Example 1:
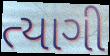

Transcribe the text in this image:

ત્યાગી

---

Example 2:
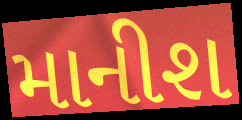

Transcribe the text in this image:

માનીશ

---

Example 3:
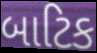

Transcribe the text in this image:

બાટિક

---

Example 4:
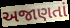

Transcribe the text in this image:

અજાણતાં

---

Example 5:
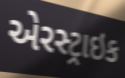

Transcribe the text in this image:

એરસ્ટ્રાઇક